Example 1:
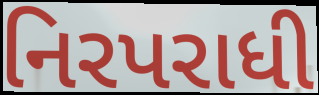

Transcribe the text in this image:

નિરપરાધી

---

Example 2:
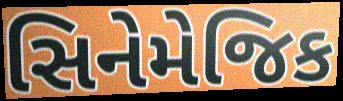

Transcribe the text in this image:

સિનેમેજિક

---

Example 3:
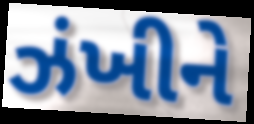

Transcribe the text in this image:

ઝંખીને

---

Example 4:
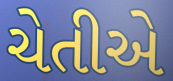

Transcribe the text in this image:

ચેતીએ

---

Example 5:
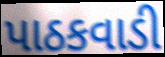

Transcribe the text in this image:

પાઠકવાડી